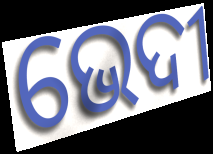
ଭେଦୀ